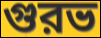
গুরভ